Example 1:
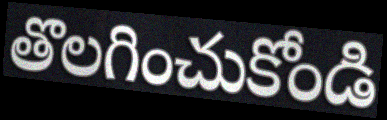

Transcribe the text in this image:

తొలగించుకోండి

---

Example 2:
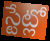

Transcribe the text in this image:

స్టేట్లో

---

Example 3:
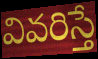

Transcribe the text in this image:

వివరిస్తే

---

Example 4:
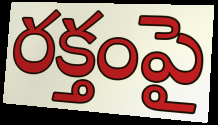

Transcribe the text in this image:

రక్తంపై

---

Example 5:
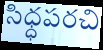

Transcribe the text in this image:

సిధ్ధపరచి